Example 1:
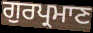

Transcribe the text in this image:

ਗੁਰਪ੍ਰਮਾਣ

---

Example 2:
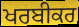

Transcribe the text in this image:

ਖਰਬੀਕਰ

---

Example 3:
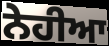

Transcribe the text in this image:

ਨੇਹੀਆ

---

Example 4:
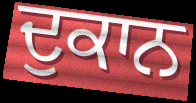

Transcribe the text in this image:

ਦੁਕਾਨ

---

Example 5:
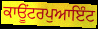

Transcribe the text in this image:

ਕਾਊਂਟਰਪੁਆਇੰਟ